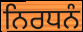
ਨਿਰਧਨੰ